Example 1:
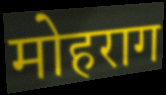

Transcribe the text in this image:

मोहराग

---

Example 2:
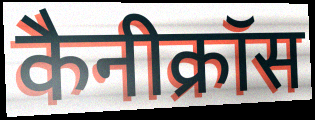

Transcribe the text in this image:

कैनीक्रॉस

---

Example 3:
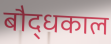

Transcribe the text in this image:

बौद्धकाल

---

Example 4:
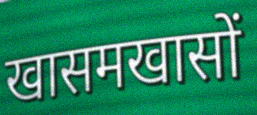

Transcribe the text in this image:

खासमखासों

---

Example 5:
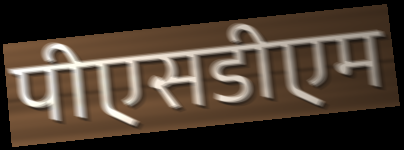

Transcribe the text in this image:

पीएसडीएम